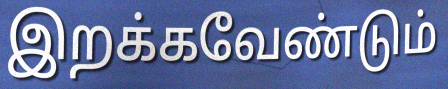
இறக்கவேண்டும்